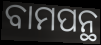
ବାମପନ୍ଥ